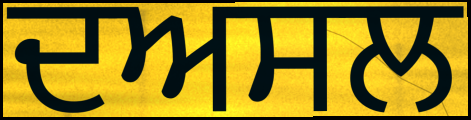
ਦਅਸਲ